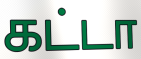
கட்டா